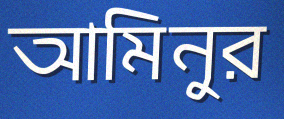
আমিনুর